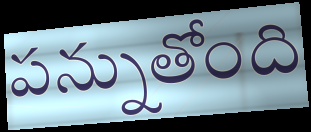
పన్నుతోంది